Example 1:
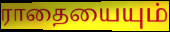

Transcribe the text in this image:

ராதையையும்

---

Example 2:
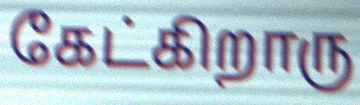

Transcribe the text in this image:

கேட்கிறாரு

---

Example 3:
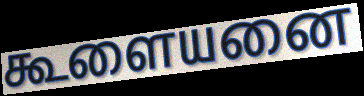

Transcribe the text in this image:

கூளையனை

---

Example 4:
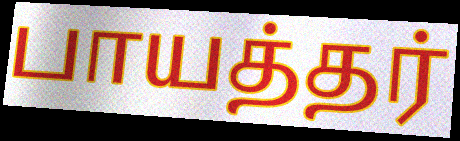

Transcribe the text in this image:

பாயத்தர்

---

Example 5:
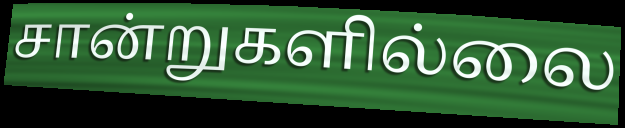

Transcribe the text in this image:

சான்றுகளில்லை